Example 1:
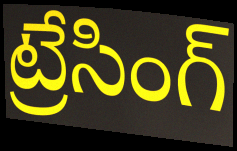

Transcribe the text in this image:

ట్రేసింగ్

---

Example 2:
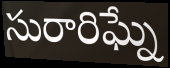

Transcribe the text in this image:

సురారిఘ్నే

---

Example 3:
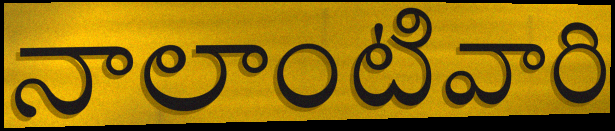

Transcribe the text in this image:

నాలాంటివారి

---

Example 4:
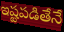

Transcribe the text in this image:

ఇష్టపడితేనే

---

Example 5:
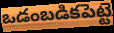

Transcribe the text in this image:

ఒడంబడికపెట్టె